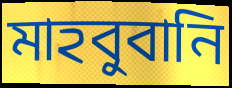
মাহবুবানি